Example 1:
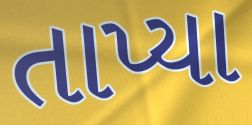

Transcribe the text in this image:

તાપ્યા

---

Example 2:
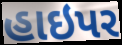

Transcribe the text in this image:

હાઇપર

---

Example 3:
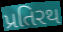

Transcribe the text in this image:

પ્રતિરથ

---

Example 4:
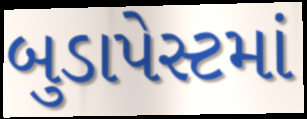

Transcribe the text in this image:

બુડાપેસ્ટમાં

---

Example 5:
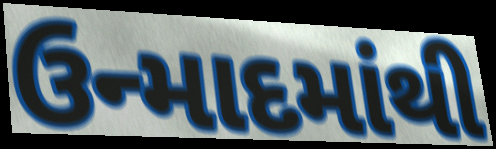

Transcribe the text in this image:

ઉન્માદમાંથી